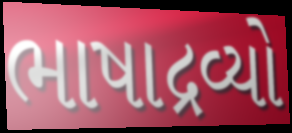
ભાષાદ્રવ્યો